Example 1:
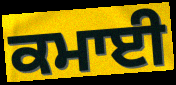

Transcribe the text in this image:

ਕਮਾਈ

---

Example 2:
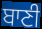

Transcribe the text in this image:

ਬਾਣੀ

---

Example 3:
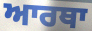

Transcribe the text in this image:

ਆਰਥਾ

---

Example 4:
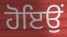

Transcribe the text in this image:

ਹੋਇਉਂ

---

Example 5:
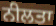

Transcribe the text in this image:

ਨੀਲਤਾ